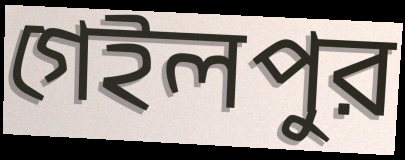
গেইলপুর